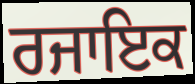
ਰਜਾਇਕ